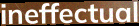
ineffectual